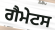
ਗੈਮੇਟਸ